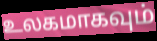
உலகமாகவும்